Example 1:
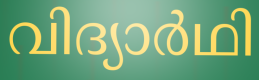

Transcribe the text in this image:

വിദ്യാർഥി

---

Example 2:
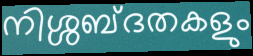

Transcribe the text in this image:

നിശ്ശബ്ദതകളും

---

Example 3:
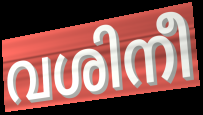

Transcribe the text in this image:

വശിനീ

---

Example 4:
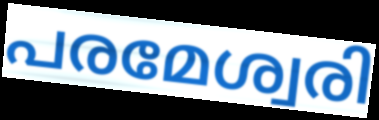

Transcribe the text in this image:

പരമേശ്വരി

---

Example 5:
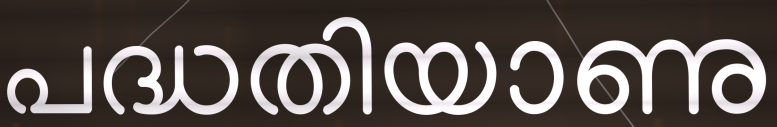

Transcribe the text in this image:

പദ്ധതിയാണു